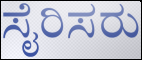
ಸೈರಿಸರು